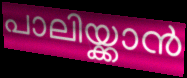
പാലിയ്ക്കാൻ